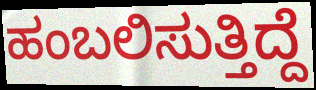
ಹಂಬಲಿಸುತ್ತಿದ್ದೆ